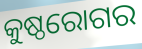
କୁଷ୍ଠରୋଗର